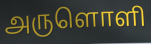
அருளொளி